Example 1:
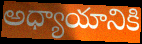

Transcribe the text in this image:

అధ్యాయానికి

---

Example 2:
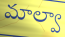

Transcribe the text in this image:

మాల్వా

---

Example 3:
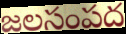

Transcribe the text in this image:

జలసంపద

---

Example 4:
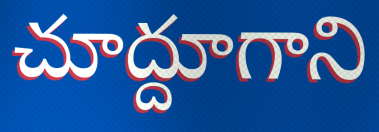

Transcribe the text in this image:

చూద్దూగాని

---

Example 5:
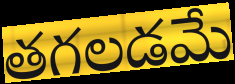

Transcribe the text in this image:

తగలడమే